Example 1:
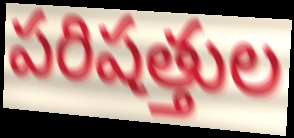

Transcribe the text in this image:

పరిషత్తుల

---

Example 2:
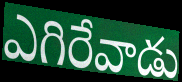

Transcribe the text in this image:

ఎగిరేవాడు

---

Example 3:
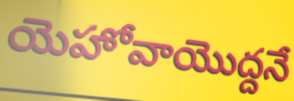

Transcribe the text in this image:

యెహోవాయొద్దనే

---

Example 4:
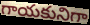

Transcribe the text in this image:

గాయకునిగా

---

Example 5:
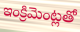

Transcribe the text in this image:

ఇంక్రిమెంట్లతో